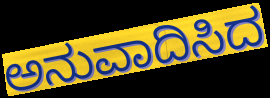
ಅನುವಾದಿಸಿದ